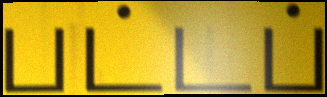
பட்டப்